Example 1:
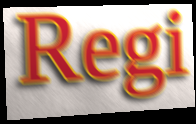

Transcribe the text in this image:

Regi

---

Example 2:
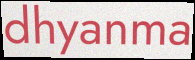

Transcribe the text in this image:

dhyanma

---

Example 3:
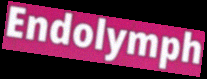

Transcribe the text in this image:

Endolymph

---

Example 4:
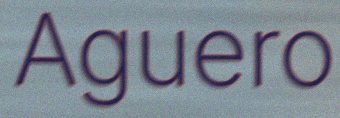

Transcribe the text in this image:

Aguero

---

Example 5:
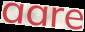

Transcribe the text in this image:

aare